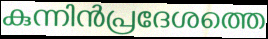
കുന്നിൻപ്രദേശത്തെ